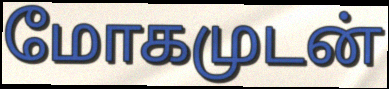
மோகமுடன்